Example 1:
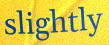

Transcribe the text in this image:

slightly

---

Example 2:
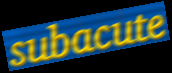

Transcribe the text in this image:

subacute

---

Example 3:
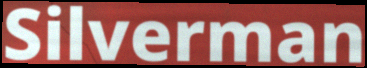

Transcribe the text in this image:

Silverman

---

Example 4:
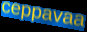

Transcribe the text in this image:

ceppavaa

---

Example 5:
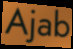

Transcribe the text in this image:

Ajab